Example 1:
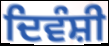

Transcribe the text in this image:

ਦਿਵੰਸ਼ੀ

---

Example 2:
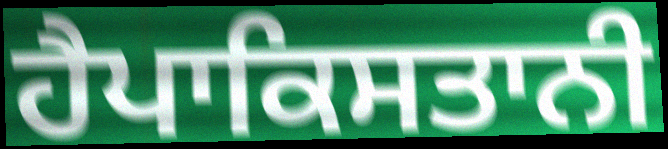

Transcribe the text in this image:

ਹੈਪਾਕਿਸਤਾਨੀ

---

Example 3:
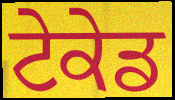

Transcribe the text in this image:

ਟੇਕੇਡ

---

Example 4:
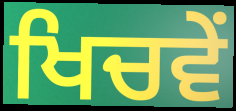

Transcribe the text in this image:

ਖਿਚਵੇਂ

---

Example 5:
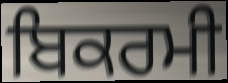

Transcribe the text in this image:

ਬਿਕਰਮੀ